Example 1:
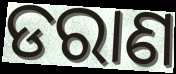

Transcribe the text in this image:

ଡରାଣ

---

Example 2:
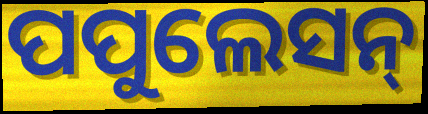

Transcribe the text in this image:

ପପୁଲେସନ୍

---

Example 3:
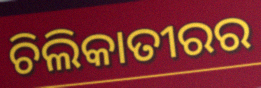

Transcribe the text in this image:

ଚିଲିକାତୀରର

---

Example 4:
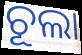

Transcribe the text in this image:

ଚୂଲା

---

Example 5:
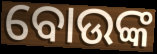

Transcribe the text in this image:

ବୋଉଙ୍କ